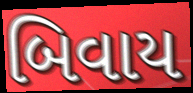
બિવાય